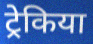
ट्रेकिया